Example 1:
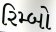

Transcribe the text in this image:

રિમ્બો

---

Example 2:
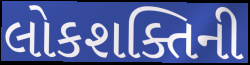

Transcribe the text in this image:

લોકશક્તિની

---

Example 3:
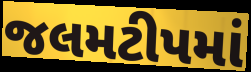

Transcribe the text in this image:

જલમટીપમાં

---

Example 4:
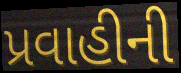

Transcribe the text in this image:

પ્રવાહીની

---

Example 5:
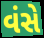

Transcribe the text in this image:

વંસે